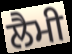
ਲੈਮੀ